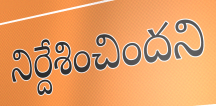
నిర్దేశించిందని